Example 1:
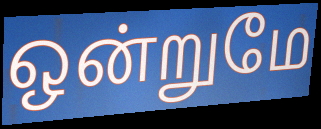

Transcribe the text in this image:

ஒன்றுமே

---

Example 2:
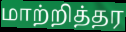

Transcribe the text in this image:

மாற்றித்தர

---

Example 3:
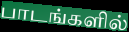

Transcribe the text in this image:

பாடங்களில்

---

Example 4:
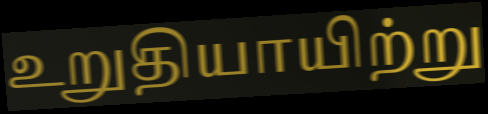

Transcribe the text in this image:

உறுதியாயிற்று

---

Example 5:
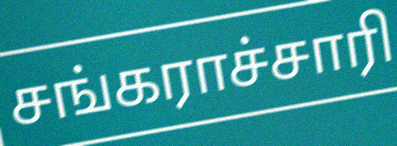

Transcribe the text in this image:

சங்கராச்சாரி